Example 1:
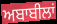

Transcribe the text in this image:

ਅਬਾਬੀਲਾਂ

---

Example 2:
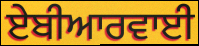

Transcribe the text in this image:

ਏਬੀਆਰਵਾਈ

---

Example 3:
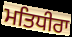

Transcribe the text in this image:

ਮਤਿਧੀਰਾ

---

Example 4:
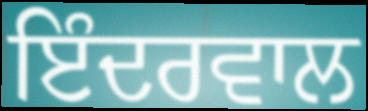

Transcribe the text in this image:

ਇੰਦਰਵਾਲ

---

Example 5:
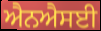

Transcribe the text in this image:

ਐਨਐਸਈ